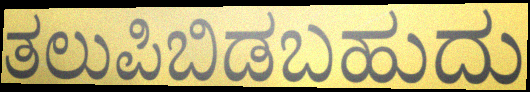
ತಲುಪಿಬಿಡಬಹುದು